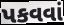
પકવવાં